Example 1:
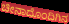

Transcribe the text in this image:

ಚೀನಾದೊಂದಿಗಿನ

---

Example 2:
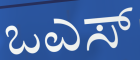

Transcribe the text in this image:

ಒಎಸ್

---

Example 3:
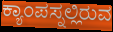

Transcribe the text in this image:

ಕ್ಯಾಂಪಸ್ನಲ್ಲಿರುವ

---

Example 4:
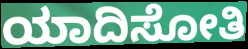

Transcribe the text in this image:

ಯಾದಿಸೋತಿ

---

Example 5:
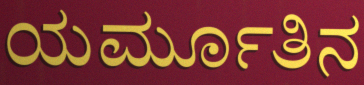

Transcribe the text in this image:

ಯರ್ಮೂತಿನ